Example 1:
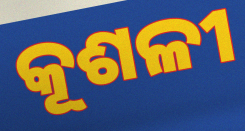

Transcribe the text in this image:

କୂଶଳୀ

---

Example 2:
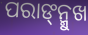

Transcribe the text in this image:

ପରାଙ୍‌ନ୍ମୁଖ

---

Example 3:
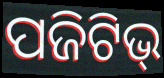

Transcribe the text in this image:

ପଜିଟିଭ୍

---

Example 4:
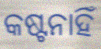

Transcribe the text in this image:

କଷ୍ଟନାହିଁ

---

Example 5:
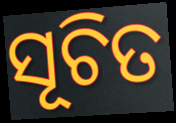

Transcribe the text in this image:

ସୂଚିତ